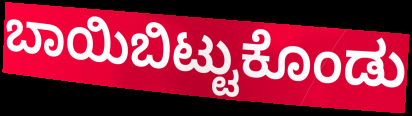
ಬಾಯಿಬಿಟ್ಟುಕೊಂಡು